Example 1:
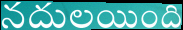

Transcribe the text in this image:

నదులయింది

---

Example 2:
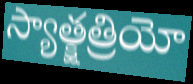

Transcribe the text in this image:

స్యాత్క్షత్రియో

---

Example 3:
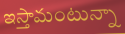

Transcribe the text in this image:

ఇస్తామంటున్నా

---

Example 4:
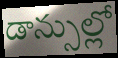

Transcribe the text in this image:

డాన్సుల్లో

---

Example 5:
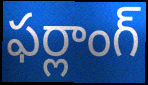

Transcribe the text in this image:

ఫర్లాంగ్